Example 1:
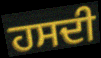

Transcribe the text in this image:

ਹਸਦੀ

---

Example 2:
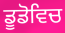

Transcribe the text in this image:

ਡੂਡੋਵਿਚ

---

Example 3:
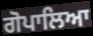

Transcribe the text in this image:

ਗੋਪਾਲਿਆ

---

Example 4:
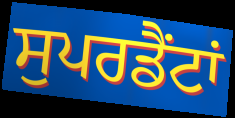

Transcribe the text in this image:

ਸੁਪਰਡੈਂਟਾਂ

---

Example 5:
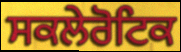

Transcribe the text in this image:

ਸਕਲੇਰੋਟਿਕ